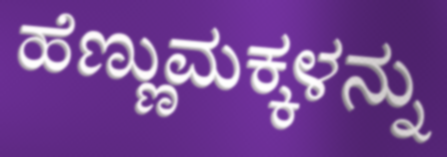
ಹೆಣ್ಣುಮಕ್ಕಳನ್ನು